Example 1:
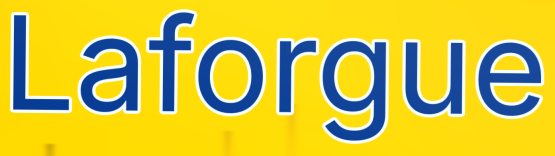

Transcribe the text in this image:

Laforgue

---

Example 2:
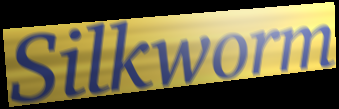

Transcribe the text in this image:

Silkworm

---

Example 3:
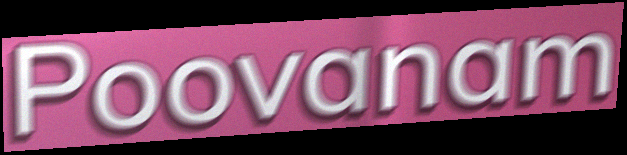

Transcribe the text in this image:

Poovanam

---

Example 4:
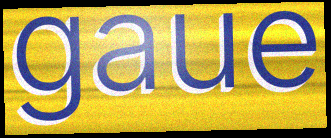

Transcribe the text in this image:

gaue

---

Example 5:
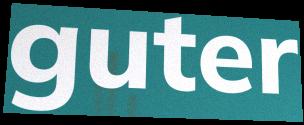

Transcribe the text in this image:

guter